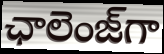
ఛాలెంజ్‌గా